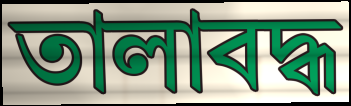
তালাবদ্ধ